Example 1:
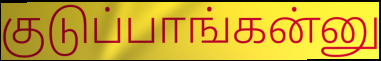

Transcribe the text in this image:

குடுப்பாங்கன்னு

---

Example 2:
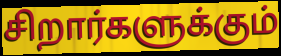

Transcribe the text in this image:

சிறார்களுக்கும்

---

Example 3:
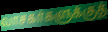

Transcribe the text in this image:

வாசகர்களுக்குத்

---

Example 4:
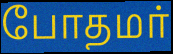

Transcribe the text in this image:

போதமர்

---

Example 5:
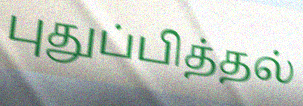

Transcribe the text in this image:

புதுப்பித்தல்